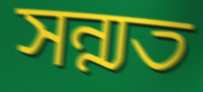
সন্মত